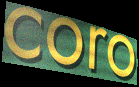
coro